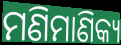
ମଣିମାଣିକ୍ୟ